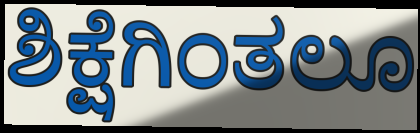
ಶಿಕ್ಷೆಗಿಂತಲೂ